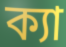
ক্যা